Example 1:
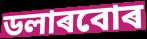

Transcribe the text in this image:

ডলাৰবোৰ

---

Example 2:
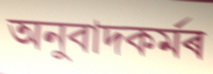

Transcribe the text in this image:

অনুবাদকৰ্মৰ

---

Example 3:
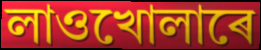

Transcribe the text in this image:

লাওখোলাৰে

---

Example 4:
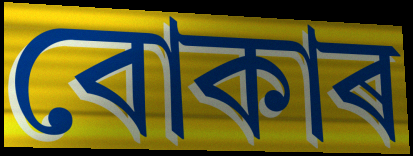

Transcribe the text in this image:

বোকাৰ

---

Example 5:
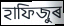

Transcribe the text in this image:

হাফিজুৰ